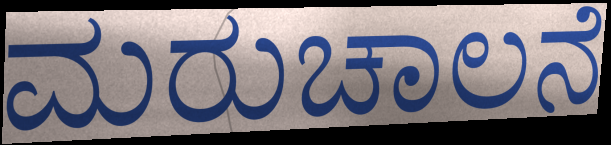
ಮರುಚಾಲನೆ